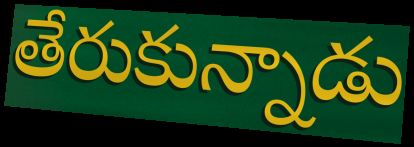
తేరుకున్నాడు